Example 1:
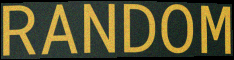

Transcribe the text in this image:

RANDOM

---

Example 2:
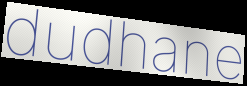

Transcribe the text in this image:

dudhane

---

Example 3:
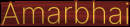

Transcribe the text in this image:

Amarbhai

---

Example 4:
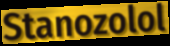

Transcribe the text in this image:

Stanozolol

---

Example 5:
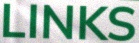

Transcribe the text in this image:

LINKS